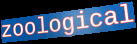
zoological